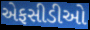
એફસીડીઓ